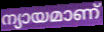
ന്യായമാണ്